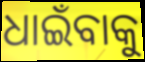
ଧାଇଁବାକୁ